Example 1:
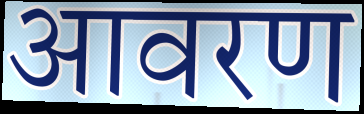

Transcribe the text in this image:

आवरण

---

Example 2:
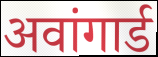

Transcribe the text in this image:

अवांगार्ड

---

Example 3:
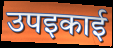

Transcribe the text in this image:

उपइकाई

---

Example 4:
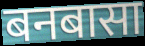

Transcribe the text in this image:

बनबासा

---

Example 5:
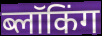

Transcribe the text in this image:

ब्लॉकिंग